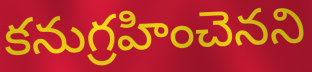
కనుగ్రహించెనని